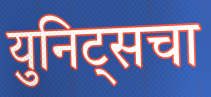
युनिट्सचा